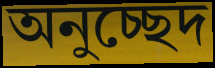
অনুচ্ছেদ